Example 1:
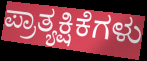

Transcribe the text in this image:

ಪ್ರಾತ್ಯಕ್ಷಿಕೆಗಳು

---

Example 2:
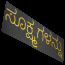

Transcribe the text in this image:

ಸೂಕ್ಷ್ಮಗಳನ್ನು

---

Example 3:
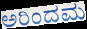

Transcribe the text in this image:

ಅರಿಂದಮ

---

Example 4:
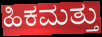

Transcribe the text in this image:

ಹಿಕಮತ್ತು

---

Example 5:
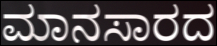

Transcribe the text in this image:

ಮಾನಸಾರದ